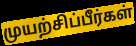
முயற்சிப்பீர்கள்